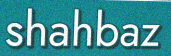
shahbaz